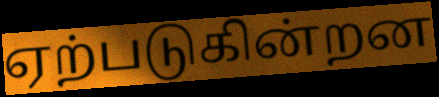
ஏற்படுகின்றன